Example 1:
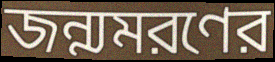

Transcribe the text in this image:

জন্মমরণের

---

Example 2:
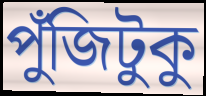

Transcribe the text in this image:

পুঁজিটুকু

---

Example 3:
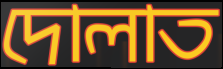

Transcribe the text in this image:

দোলাত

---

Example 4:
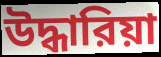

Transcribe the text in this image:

উদ্ধারিয়া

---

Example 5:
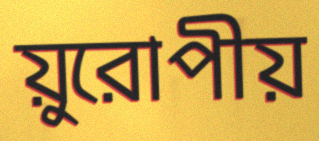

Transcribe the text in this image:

য়ুরোপীয়